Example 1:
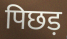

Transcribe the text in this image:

पिछड़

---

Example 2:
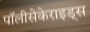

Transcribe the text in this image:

पॉलीसेकेराइड्स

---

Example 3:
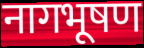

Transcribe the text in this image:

नागभूषण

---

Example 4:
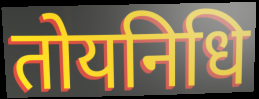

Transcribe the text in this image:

तोयनिधि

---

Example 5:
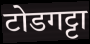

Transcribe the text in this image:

टोडगट्टा